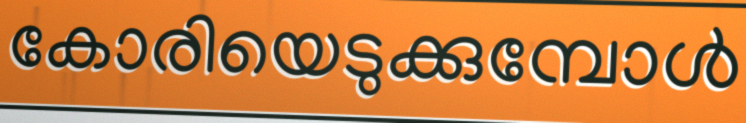
കോരിയെടുക്കുമ്പോൾ